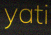
yati